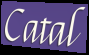
Catal